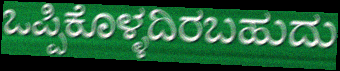
ಒಪ್ಪಿಕೊಳ್ಳದಿರಬಹುದು